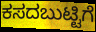
ಕಸದಬುಟ್ಟಿಗೆ